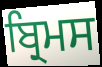
ਬ੍ਰਿਮਸ